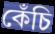
কেঁচি